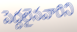
పెద్దలైనవారిని